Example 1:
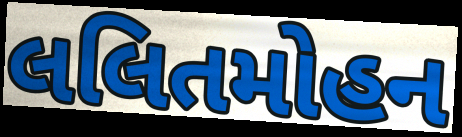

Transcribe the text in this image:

લલિતમોહન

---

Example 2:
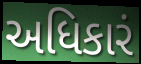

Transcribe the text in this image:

અધિકારં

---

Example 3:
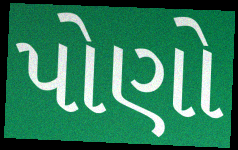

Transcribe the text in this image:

પોણો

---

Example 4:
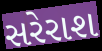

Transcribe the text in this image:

સરેરાશ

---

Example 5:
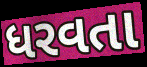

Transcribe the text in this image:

ધરવતા